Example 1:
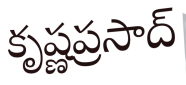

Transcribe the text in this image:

కృష్ణప్రసాద్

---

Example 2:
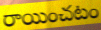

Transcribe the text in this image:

రాయించటం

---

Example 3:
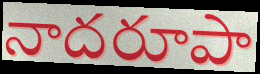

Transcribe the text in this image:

నాదరూపా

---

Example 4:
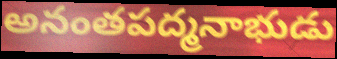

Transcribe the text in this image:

అనంతపద్మనాభుడు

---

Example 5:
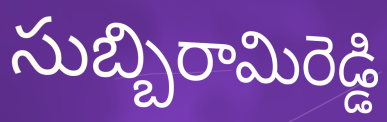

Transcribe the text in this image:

సుబ్బిరామిరెడ్డి